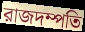
রাজদম্পতি